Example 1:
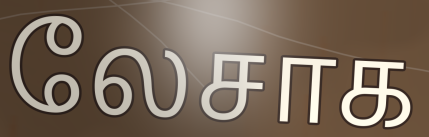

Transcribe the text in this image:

லேசாக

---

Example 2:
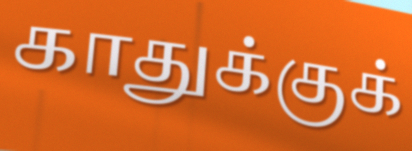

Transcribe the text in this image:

காதுக்குக்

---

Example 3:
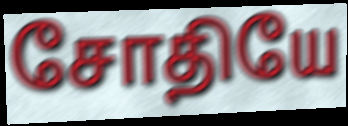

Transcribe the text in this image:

சோதியே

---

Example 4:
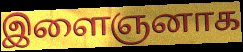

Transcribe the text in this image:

இளைஞனாக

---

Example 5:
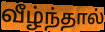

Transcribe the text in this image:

வீழ்ந்தால்